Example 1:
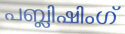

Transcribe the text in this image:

പബ്ലിഷിംഗ്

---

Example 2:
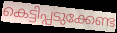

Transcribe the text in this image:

കെട്ടിപ്പടുക്കേണ്ട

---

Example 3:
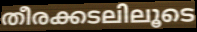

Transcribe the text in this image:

തീരക്കടലിലൂടെ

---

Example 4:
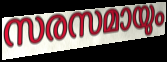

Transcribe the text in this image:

സരസമായും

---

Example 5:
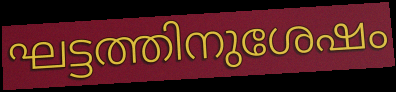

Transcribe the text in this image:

ഘട്ടത്തിനുശേഷം